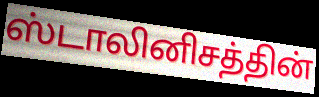
ஸ்டாலினிசத்தின்